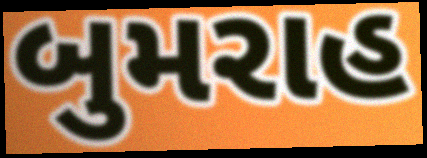
બુમરાહ